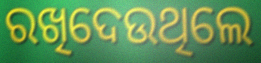
ରଖିଦେଉଥିଲେ